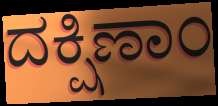
ದಕ್ಷಿಣಾಂ